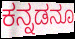
ಕನ್ನಡನೂ